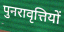
पुनरावृत्तियों